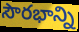
సౌరభాన్ని